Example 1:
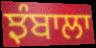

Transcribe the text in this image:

ਝੰਬਾਲਾ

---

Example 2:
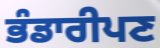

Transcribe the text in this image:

ਭੰਡਾਰੀਪਣ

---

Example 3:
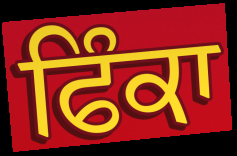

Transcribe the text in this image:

ਫਿੰਕਾ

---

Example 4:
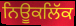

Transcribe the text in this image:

ਨਿਊਕਲਿੱਕ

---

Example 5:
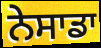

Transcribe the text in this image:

ਨੇਸਾਡਾ